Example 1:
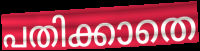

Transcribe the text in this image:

പതിക്കാതെ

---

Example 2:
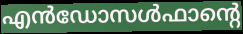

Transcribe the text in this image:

എൻഡോസൾഫാന്റെ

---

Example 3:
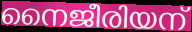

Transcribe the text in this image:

നൈജീരിയന്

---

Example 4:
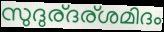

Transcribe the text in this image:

സുദുര്ദര്ശമിദം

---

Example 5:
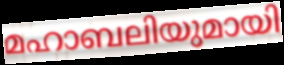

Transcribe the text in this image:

മഹാബലിയുമായി